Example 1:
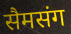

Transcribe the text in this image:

सैमसंग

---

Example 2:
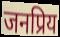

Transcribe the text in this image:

जनप्रिय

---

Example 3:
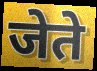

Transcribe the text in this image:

जेते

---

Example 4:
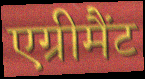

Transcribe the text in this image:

एग्रीमैंट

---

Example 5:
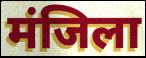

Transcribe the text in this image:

मंजिला